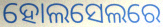
ହୋଲସେଲରେ